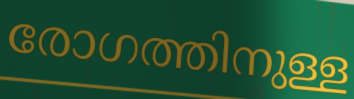
രോഗത്തിനുള്ള